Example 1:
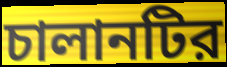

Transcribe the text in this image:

চালানটির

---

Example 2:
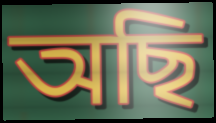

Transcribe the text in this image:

অছি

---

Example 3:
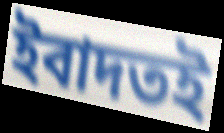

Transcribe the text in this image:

ইবাদতই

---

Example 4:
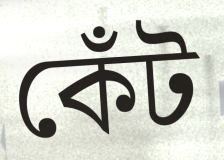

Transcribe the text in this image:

কেঁট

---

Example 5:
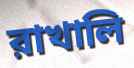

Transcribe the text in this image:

রাখালি